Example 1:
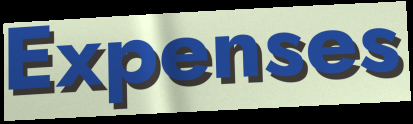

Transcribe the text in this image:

Expenses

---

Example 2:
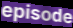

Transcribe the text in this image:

episode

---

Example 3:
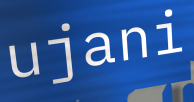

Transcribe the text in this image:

ujani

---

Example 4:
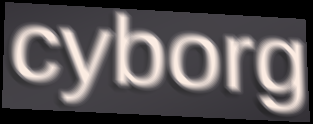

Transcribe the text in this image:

cyborg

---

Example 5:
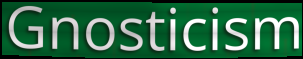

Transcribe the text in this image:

Gnosticism